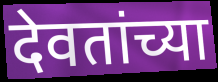
देवतांच्या